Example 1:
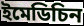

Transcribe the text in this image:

ইমেডিচিন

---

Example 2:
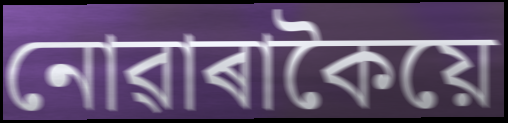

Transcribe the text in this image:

নোৱাৰাকৈয়ে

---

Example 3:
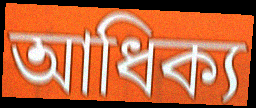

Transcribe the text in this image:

আধিক্য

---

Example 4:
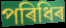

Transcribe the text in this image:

পৰিধিৰ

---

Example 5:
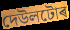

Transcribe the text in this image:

দেউলটোৰ